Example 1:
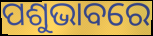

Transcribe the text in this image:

ପଶୁଭାବରେ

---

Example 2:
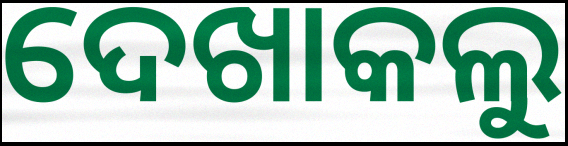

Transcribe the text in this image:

ଦେଖାକଲୁ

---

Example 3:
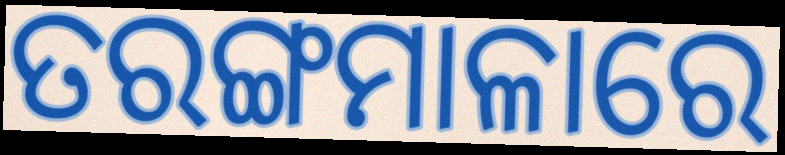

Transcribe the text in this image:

ତରଙ୍ଗମାଳାରେ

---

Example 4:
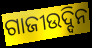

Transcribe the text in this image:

ଗାଜୀଉଦ୍ଦିନ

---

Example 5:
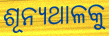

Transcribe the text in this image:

ଶୂନ୍ୟଥାଳକୁ